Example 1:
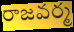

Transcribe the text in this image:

రాజవర్మ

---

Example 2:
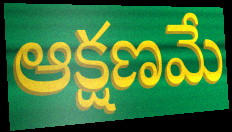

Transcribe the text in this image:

ఆక్షణమే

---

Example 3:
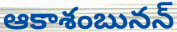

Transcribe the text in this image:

ఆకాశంబునన్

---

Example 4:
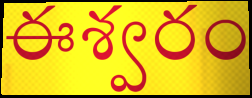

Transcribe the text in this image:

ఈశ్వరం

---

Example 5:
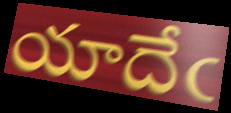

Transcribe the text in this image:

యాదేఁ